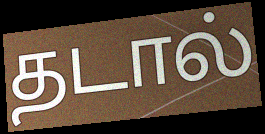
தடால்